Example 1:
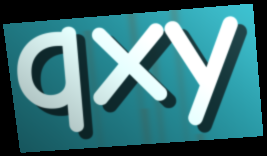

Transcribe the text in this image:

qxy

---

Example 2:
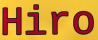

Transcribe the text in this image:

Hiro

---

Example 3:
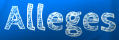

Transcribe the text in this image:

Alleges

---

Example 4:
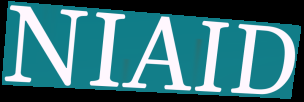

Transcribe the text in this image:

NIAID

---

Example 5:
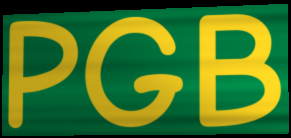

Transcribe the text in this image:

PGB